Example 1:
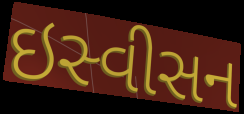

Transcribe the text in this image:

ઇસ્વીસન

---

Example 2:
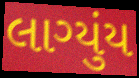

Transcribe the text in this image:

લાગ્યુંય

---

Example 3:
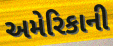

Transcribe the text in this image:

અમેરિકાની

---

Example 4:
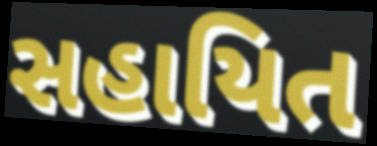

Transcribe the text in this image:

સહાયિત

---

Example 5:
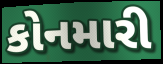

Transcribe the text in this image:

કોનમારી